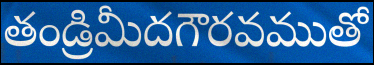
తండ్రిమీదగౌరవముతో